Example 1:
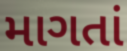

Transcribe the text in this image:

માગતાં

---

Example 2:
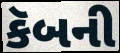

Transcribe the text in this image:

કૅબની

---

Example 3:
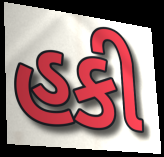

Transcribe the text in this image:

હકી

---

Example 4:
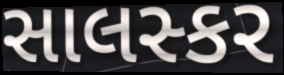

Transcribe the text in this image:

સાલસ્કર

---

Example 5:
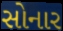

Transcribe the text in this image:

સોનાર